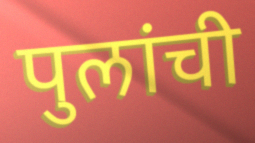
पुलांची